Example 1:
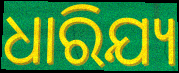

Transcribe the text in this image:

ଧାରିଯ୍ୟ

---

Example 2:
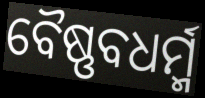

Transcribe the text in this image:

ବୈଷ୍ଣବଧର୍ମ୍ମ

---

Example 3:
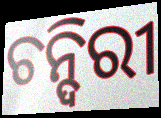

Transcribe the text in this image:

ଚନ୍ଦିରୀ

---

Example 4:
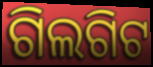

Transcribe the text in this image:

ଗିଲଗିଟ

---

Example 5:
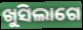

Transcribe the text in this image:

ଖୁସିଲାଗେ